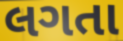
લગતા